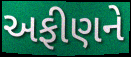
અફીણને